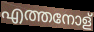
എത്തനോള്